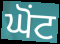
ਘੋਂਟ